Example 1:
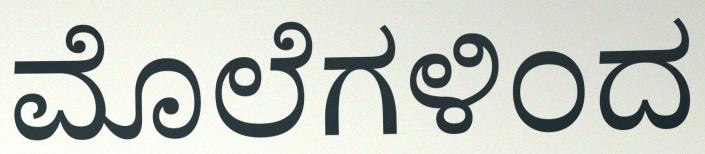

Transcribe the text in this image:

ಮೊಲೆಗಳಿಂದ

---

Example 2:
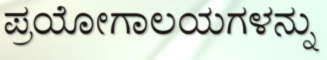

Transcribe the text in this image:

ಪ್ರಯೋಗಾಲಯಗಳನ್ನು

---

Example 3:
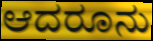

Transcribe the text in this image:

ಆದರೂನು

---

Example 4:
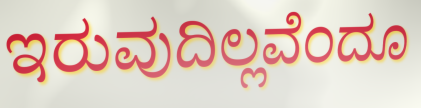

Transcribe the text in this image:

ಇರುವುದಿಲ್ಲವೆಂದೂ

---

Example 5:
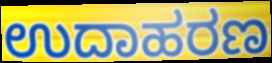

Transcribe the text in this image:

ಉದಾಹರಣ